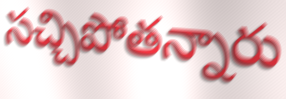
సచ్చిపోతన్నారు